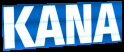
KANA